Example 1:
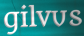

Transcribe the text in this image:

gilvus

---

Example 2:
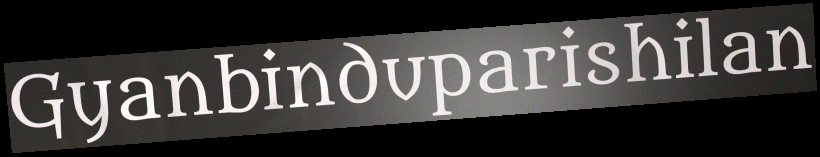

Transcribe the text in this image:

Gyanbinduparishilan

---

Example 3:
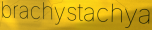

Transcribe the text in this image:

brachystachya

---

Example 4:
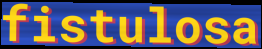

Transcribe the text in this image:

fistulosa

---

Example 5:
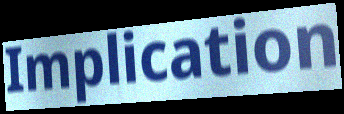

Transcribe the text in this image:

Implication